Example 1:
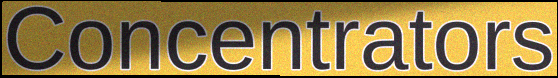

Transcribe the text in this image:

Concentrators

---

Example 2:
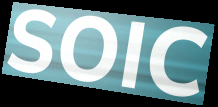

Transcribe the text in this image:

SOIC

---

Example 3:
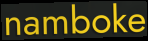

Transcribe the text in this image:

namboke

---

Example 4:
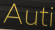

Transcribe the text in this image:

Auti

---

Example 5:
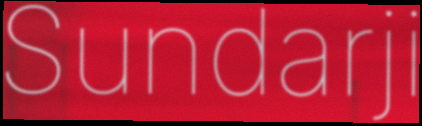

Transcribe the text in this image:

Sundarji